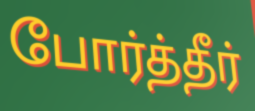
போர்த்தீர்